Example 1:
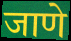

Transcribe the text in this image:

जाणे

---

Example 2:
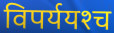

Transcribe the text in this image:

विपर्ययश्च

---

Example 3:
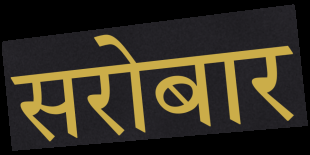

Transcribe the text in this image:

सरोबार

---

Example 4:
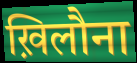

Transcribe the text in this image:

ख़िलौना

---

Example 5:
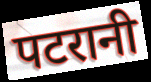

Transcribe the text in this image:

पटरानी